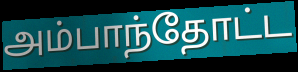
அம்பாந்தோட்ட